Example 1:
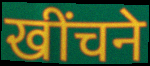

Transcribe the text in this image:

खींचने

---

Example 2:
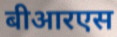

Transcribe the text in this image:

बीआरएस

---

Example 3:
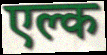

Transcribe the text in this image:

एल्क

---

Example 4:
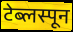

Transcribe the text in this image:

टेब्लस्पून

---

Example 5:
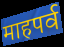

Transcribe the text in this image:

माहपर्व